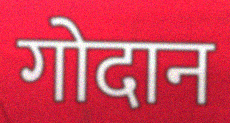
गोदान